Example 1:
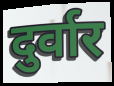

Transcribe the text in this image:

दुर्वार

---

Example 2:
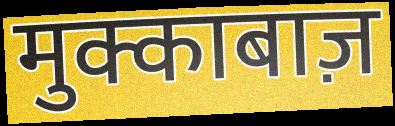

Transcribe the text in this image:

मुक्काबाज़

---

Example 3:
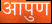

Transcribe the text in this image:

आपुण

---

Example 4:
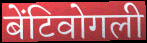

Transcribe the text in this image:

बेंटिवोगली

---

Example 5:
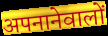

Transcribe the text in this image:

अपनानेवालों